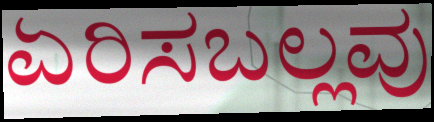
ಏರಿಸಬಲ್ಲವು